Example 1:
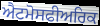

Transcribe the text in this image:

ਐਟਮੋਸਫੀਅਰਿਕ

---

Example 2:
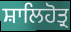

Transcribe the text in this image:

ਸ਼ਾਲਿਹੋਤ੍ਰ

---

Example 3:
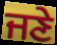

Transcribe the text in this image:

ਜਣੇ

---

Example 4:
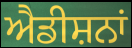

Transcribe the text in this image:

ਐਡੀਸ਼ਨਾਂ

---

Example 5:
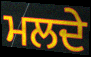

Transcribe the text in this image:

ਮਲਦੇ